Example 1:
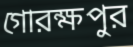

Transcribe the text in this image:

গোরক্ষপুর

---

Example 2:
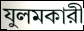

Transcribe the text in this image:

যুলমকারী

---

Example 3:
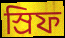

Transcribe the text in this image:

স্রিফ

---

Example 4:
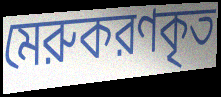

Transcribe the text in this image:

মেরুকরণকৃত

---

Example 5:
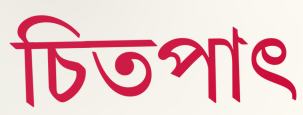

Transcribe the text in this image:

চিতপাৎ